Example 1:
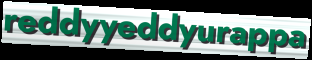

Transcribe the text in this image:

reddyyeddyurappa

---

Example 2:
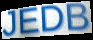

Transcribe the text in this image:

JEDB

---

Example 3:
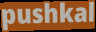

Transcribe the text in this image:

pushkal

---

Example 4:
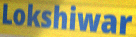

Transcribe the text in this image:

Lokshiwar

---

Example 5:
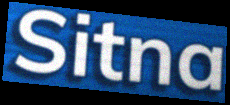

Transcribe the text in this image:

Sitna